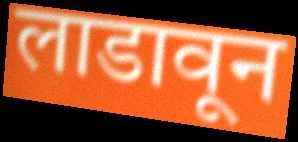
लाडावून